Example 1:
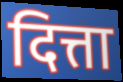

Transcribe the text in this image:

दित्ता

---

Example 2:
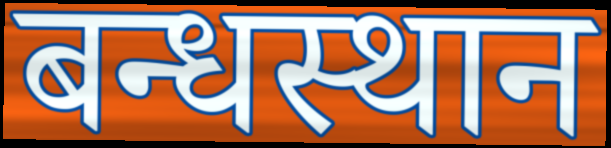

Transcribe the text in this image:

बन्धस्थान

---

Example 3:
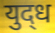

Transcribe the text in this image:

युद्‍ध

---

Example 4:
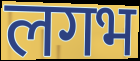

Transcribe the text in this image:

लगभ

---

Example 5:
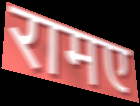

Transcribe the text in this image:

रामए